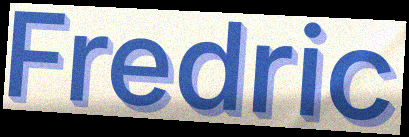
Fredric